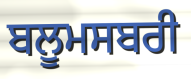
ਬਲੂਮਸਬਰੀ